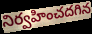
నిర్వహించదగిన